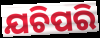
ଯଚିପରି